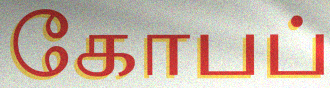
கோபப்